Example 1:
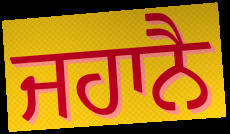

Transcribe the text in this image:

ਜਹਾਨੈ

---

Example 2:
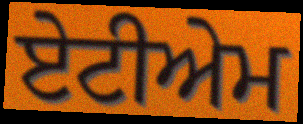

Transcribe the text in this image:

ਏਟੀਅੇਮ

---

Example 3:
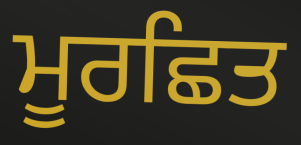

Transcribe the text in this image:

ਮੂਰਛਿਤ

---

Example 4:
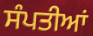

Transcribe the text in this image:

ਸੰਪਤੀਆਂ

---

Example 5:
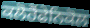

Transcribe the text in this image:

ਕਲੋਰੈਂਫੇਨਿਕੋਲ